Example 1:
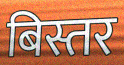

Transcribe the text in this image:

बिस्तर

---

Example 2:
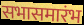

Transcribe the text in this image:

सभासमारंभ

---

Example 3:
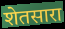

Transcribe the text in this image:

शेतसारा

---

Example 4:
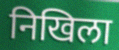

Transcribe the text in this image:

निखिला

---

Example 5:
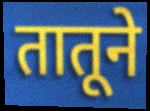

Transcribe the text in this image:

तातूने